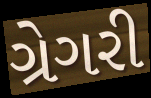
ગ્રેગરી